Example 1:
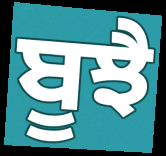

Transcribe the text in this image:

ਬੂਝੈ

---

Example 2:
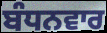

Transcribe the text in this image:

ਬੰਧਨਵਾਰ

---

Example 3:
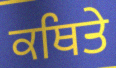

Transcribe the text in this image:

ਕਥਿਤੇ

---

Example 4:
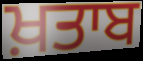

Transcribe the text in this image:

ਖ਼ਤਾਬ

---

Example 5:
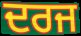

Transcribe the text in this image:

ਦਰਜ